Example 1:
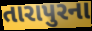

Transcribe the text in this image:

તારાપુરના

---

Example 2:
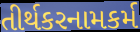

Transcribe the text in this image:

તીર્થકરનામકર્મ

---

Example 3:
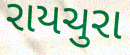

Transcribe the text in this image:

રાયચુરા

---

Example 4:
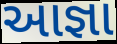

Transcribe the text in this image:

આજ્ઞા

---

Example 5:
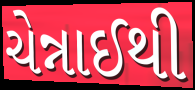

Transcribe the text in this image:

ચેન્નાઈથી